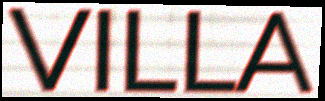
VILLA